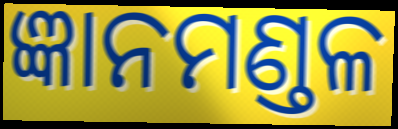
ଜ୍ଞାନମଣ୍ଡଳ